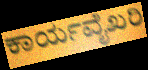
ಕಾರ್ಯವೈಖರಿ